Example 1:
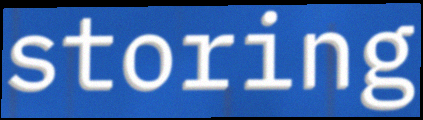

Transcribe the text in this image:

storing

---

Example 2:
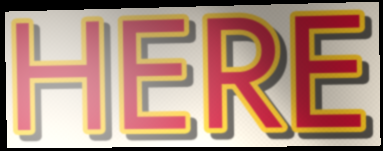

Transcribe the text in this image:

HERE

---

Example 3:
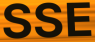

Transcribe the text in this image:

SSE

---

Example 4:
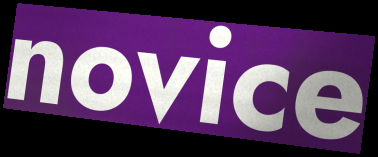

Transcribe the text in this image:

novice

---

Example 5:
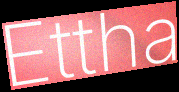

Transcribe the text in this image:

Ettha